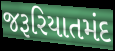
જરૂરિયાતમંદ